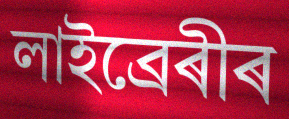
লাইব্ৰেৰীৰ